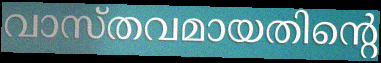
വാസ്തവമായതിന്റെ